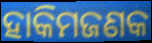
ହାକିମଜଣକ